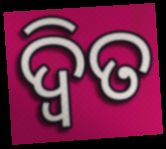
ଦ୍ବିତ